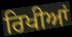
ਰਿਖੀਆਂ